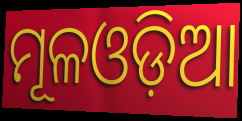
ମୂଳଓଡ଼ିଆ